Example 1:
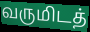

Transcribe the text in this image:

வருமிடத்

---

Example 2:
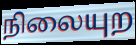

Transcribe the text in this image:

நிலையுற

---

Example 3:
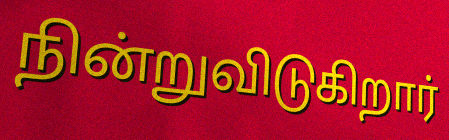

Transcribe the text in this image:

நின்றுவிடுகிறார்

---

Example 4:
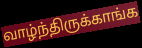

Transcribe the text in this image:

வாழ்ந்திருக்காங்க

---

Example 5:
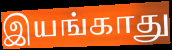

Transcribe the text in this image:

இயங்காது